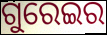
ଗୁରେଇର